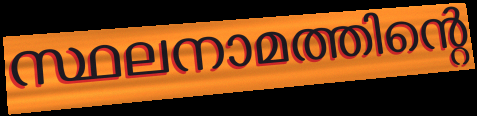
സ്ഥലനാമത്തിന്റെ